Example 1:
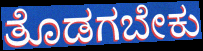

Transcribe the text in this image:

ತೊಡಗಬೇಕು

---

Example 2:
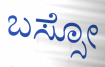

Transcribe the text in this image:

ಬಸ್ಸೋ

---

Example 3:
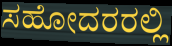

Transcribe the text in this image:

ಸಹೋದರರಲ್ಲಿ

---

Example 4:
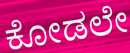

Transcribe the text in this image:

ಕೋಡಲೇ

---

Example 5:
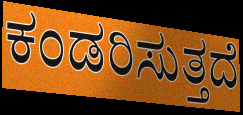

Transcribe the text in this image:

ಕಂಡರಿಸುತ್ತದೆ